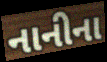
નાનીના